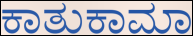
ಕಾತುಕಾಮಾ